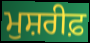
ਮੁਸ਼ਰੀਫ਼